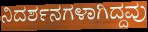
ನಿದರ್ಶನಗಳಾಗಿದ್ದವು